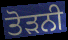
ਤੋੜਨੀ